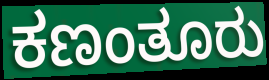
ಕಣಂತೂರು